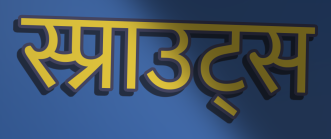
स्प्राउट्स